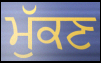
ਮੁੱਕਣ